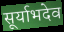
सूर्याभदेव